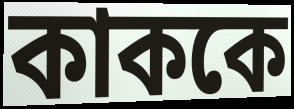
কাককে